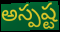
అస్పష్ట